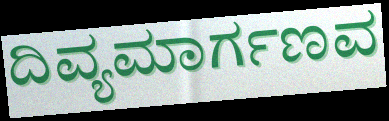
ದಿವ್ಯಮಾರ್ಗಣವ